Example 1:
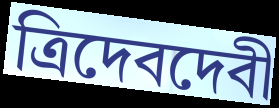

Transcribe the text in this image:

ত্রিদেবদেবী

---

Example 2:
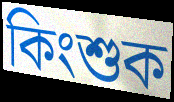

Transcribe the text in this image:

কিংশুক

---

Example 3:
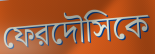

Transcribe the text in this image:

ফেরদৌসিকে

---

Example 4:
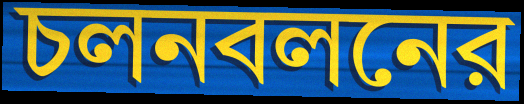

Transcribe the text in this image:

চলনবলনের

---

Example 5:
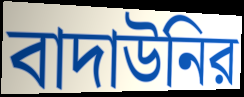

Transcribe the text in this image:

বাদাউনির